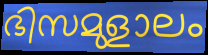
ഭിസമുളാലം